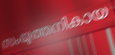
സംയുത്തനികായ